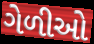
ગેળીઓ